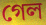
গেল